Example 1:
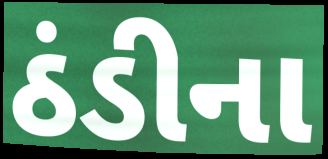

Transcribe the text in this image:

ઠંડીના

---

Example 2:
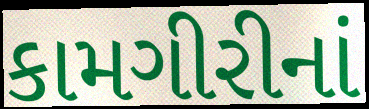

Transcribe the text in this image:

કામગીરીનાં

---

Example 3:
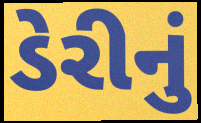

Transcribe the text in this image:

ડેરીનું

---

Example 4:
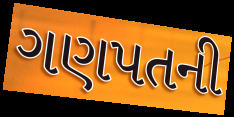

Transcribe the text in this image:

ગણપતની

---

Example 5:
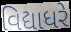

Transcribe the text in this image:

વિદ્યાધરે